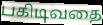
பகிடிவதை